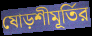
ষোড়শীমূর্তির